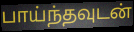
பாய்ந்தவுடன்